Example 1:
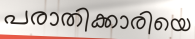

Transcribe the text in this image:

പരാതിക്കാരിയെ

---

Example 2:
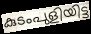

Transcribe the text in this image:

കുടംപുളിയിട്ട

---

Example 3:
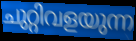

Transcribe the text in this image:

ചുറ്റിവളയുന്ന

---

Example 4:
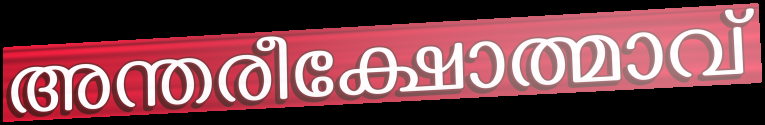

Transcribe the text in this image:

അന്തരീക്ഷോത്മാവ്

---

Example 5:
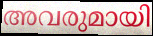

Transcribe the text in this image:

അവരുമായി